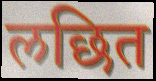
लछित